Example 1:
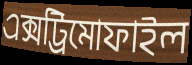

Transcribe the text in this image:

এক্সট্রিমোফাইল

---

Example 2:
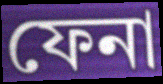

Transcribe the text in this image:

ফেনা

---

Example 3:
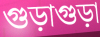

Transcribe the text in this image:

গুড়াগুড়া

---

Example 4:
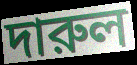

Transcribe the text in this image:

দারুল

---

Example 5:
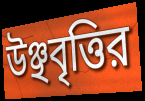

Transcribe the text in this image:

উঞ্ছবৃত্তির